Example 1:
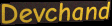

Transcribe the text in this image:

Devchand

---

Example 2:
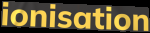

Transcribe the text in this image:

ionisation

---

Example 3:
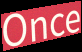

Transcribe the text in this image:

Once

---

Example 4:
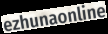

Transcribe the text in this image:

ezhunaonline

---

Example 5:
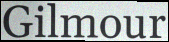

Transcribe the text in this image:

Gilmour